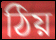
ঠিয়